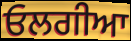
ਓਲਗੀਆ